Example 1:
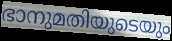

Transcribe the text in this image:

ഭാനുമതിയുടെയും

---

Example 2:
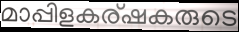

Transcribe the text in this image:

മാപ്പിളകര്ഷകരുടെ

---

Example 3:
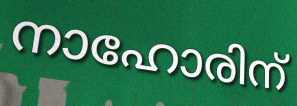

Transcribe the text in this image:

നാഹോരിന്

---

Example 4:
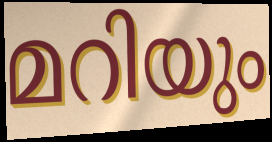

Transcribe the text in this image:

മറിയും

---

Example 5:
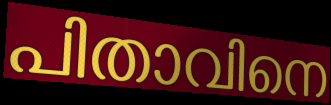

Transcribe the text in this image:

പിതാവിനെ